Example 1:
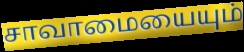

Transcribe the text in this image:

சாவாமையையும்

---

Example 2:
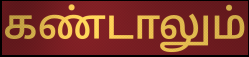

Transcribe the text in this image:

கண்டாலும்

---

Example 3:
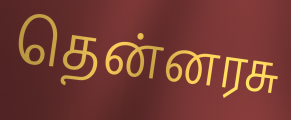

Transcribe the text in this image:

தென்னரசு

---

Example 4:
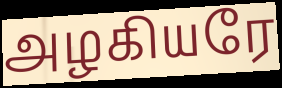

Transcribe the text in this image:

அழகியரே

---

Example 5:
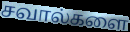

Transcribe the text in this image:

சவால்களை